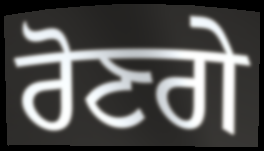
ਰੋਣਗੇ